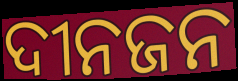
ଦୀନଜନ